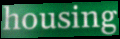
housing